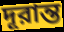
দূরান্ত